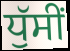
ਧੁੱਸੀਂ